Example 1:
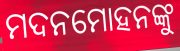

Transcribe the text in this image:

ମଦନମୋହନଙ୍କୁ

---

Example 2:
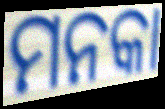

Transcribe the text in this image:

ମନକା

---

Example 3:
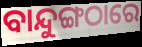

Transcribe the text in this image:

ବାନ୍ଦୁଙ୍ଗଠାରେ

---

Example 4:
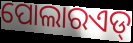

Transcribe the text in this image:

ପୋଲାରଏଡ୍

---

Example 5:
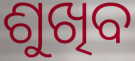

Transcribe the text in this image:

ଶୁଖିବ